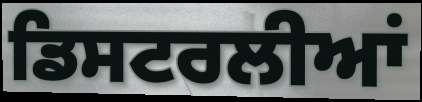
ਡਿਸਟਰਲੀਆਂ